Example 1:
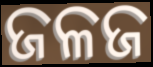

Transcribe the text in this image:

ଜଳଜ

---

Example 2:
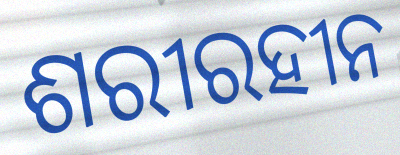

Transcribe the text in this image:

ଶରୀରହୀନ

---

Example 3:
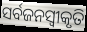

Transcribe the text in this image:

ସର୍ବଜନସ୍ୱୀକୃତି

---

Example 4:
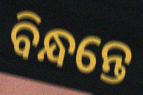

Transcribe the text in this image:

ବିନ୍ଧନ୍ତେ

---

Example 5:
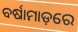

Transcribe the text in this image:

ବର୍ଷାମାଡ଼ରେ